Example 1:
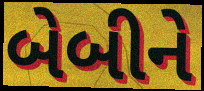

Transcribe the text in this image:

બેબીને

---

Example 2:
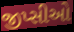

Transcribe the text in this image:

જીપ્સીઓ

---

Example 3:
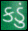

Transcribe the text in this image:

કડું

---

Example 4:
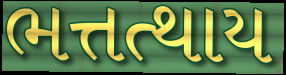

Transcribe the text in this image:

ભત્તત્થાય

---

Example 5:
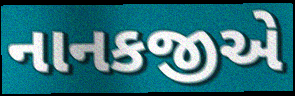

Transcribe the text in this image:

નાનકજીએ